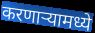
करणाऱ्यामध्ये